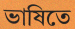
ভাষিতে